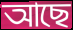
আছে